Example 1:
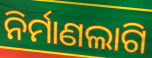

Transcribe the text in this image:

ନିର୍ମାଣଲାଗି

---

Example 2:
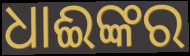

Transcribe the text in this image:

ଧାଈଙ୍କର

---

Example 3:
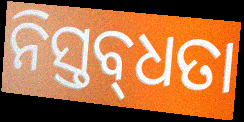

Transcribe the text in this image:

ନିସ୍ତବ୍‌ଧତା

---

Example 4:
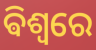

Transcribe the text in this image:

ଵିଶ୍ଵରେ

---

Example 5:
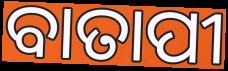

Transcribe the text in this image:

ବାତାପୀ